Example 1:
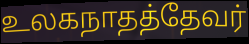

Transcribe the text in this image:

உலகநாதத்தேவர்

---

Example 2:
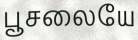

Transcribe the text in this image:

பூசலையே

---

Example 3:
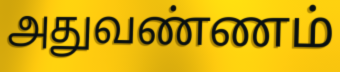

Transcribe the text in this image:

அதுவண்ணம்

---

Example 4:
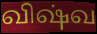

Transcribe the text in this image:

விஷ்வ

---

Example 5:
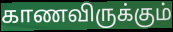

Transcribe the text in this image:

காணவிருக்கும்